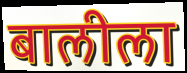
बालीला